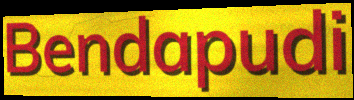
Bendapudi